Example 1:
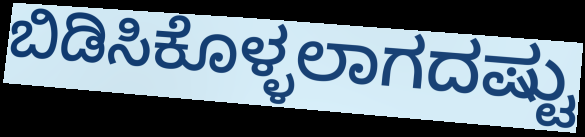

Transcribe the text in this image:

ಬಿಡಿಸಿಕೊಳ್ಳಲಾಗದಷ್ಟು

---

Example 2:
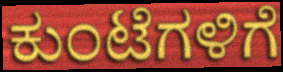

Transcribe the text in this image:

ಕುಂಟೆಗಳಿಗೆ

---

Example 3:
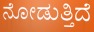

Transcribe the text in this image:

ನೋಡುತ್ತಿದೆ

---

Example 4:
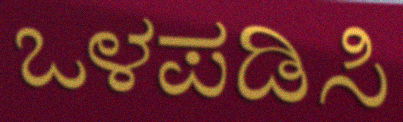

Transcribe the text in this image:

ಒಳಪಡಿಸಿ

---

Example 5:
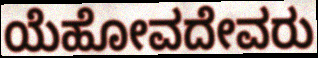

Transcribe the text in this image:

ಯೆಹೋವದೇವರು